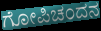
ಗೋಪಿಚಂದನ